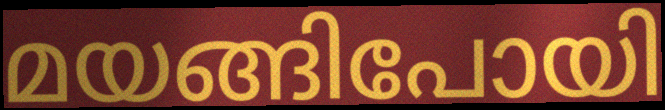
മയങ്ങിപോയി